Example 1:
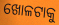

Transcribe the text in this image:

ଖୋଳଟାକୁ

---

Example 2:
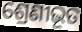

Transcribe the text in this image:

ଶ୍ରେଣୀଭୂତ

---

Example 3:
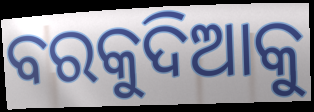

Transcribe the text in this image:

ବରକୁଦିଆକୁ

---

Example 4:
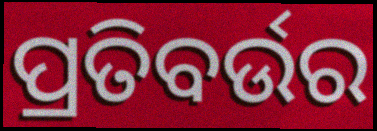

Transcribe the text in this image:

ପ୍ରତିବର୍ଉର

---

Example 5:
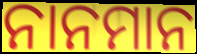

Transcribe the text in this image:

ନାନମାନ